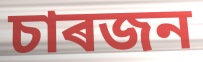
চাৰজন